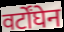
वर्टोंघेन